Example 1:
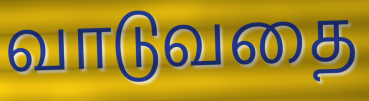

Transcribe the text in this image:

வாடுவதை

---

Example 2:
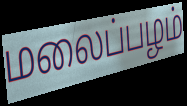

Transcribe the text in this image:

மலைப்பழம்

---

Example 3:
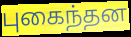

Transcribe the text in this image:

புகைந்தன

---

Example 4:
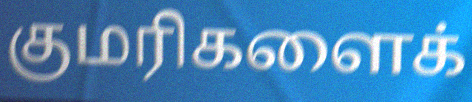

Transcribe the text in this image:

குமரிகளைக்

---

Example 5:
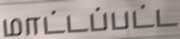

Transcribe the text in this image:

மாட்டப்பட்ட